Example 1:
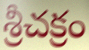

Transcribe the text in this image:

శ్రీచక్రం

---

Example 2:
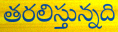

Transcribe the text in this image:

తరలిస్తున్నది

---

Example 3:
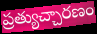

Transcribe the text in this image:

ప్రత్యుచ్చారణం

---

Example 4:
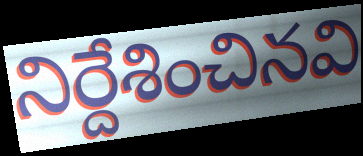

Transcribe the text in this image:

నిర్దేశించినవి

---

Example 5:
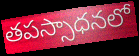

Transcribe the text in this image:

తపస్సాధనలో